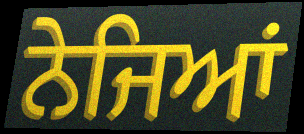
ਨੇਜਿਆਂ